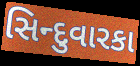
સિન્દુવારકા